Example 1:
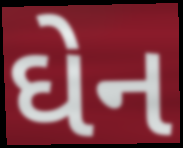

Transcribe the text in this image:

ઘેન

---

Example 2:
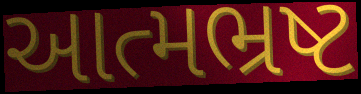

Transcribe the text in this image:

આત્મભ્રષ્ટ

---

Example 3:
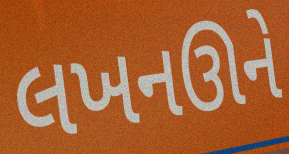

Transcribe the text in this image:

લખનઊને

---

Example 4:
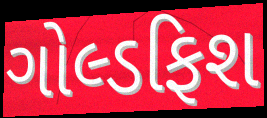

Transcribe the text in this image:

ગોલ્ડફિશ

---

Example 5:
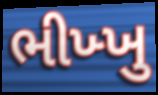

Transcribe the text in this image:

ભીખ્ખુ